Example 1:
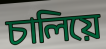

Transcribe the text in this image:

চালিয়ে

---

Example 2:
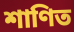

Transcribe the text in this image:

শাণিত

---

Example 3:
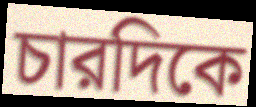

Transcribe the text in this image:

চারদিকে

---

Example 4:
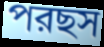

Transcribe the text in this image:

পরছস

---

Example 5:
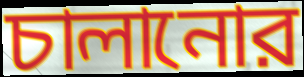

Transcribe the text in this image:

চালানোর